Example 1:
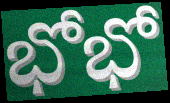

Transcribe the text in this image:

భోభో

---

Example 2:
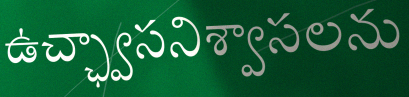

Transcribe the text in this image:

ఉచ్ఛ్వాసనిశ్వాసలను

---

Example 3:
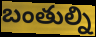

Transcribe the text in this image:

బంతుల్ని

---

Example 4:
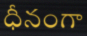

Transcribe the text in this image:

ధీనంగా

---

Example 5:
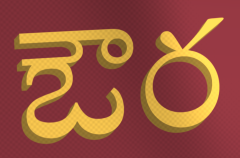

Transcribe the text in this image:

ఔర